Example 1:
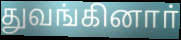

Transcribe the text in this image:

துவங்கினார்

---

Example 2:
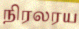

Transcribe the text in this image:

நிரலரய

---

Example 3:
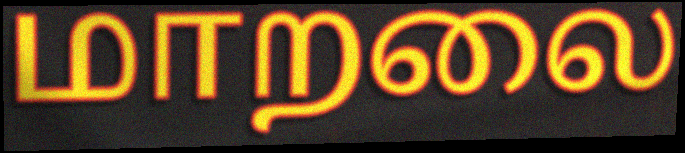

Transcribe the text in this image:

மாறலை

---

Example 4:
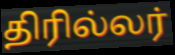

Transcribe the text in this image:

திரில்லர்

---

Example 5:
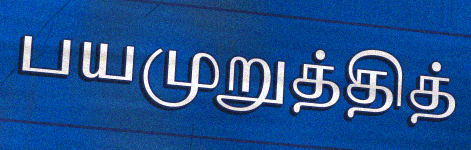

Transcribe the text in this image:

பயமுறுத்தித்